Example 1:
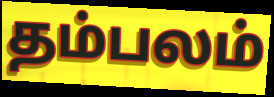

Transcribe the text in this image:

தம்பலம்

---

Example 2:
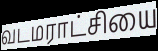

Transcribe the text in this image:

வடமராட்சியை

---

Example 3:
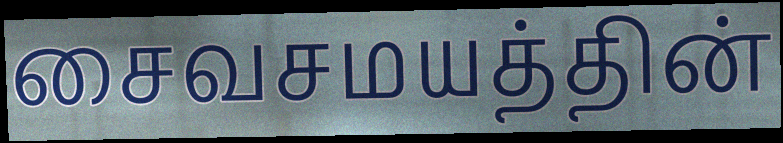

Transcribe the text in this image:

சைவசமயத்தின்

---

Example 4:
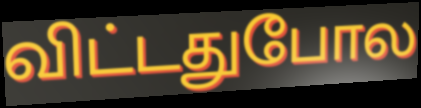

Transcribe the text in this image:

விட்டதுபோல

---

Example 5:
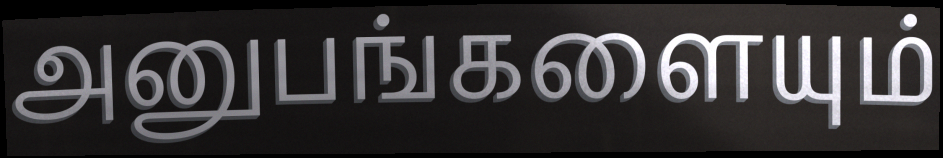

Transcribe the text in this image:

அனுபங்களையும்